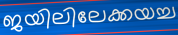
ജയിലിലേക്കയച്ച